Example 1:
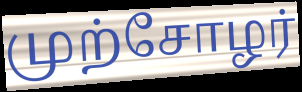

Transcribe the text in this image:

முற்சோழர்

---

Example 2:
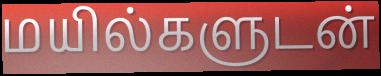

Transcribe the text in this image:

மயில்களுடன்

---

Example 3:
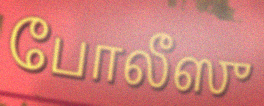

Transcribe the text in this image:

போலீஸு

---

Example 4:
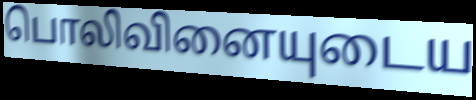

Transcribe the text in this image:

பொலிவினையுடைய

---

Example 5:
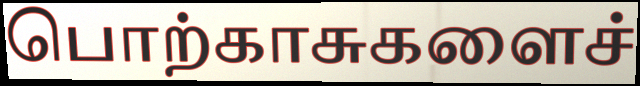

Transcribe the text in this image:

பொற்காசுகளைச்